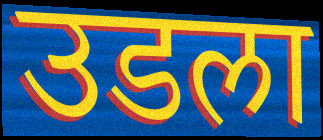
उडला